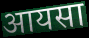
आयसा